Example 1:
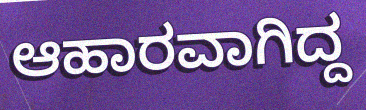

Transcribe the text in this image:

ಆಹಾರವಾಗಿದ್ದ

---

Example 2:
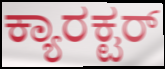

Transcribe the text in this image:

ಕ್ಯಾರಕ್ಟರ್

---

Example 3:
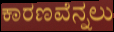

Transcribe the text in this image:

ಕಾರಣವೆನ್ನಲು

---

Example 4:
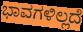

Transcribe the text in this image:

ಭಾವಗಳಿಲ್ಲದೆ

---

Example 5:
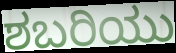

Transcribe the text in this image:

ಶಬರಿಯು